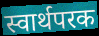
स्वार्थपरक